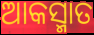
ଆକସ୍ମାତ